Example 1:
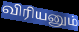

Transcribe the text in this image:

விரியனும்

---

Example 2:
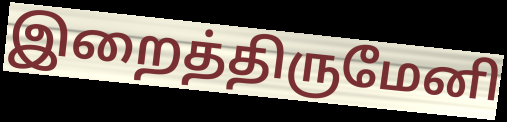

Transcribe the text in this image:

இறைத்திருமேனி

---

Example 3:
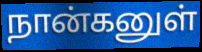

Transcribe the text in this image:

நான்கனுள்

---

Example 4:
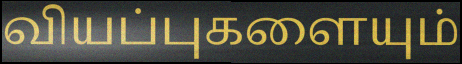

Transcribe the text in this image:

வியப்புகளையும்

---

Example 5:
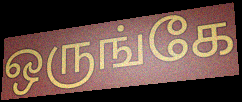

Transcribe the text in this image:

ஒருங்கே